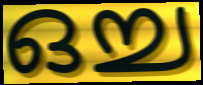
ഒച്ച